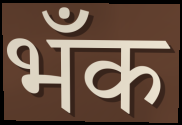
भँक